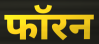
फॉरन